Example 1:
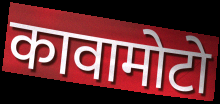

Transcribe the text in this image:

कावामोटो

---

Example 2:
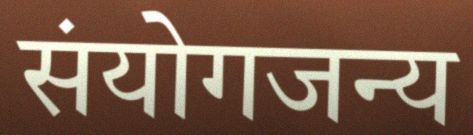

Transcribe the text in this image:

संयोगजन्य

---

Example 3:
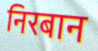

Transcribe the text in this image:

निरबान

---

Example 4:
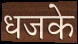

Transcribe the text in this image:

धजके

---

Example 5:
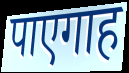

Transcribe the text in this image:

पाएगाह